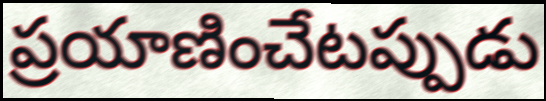
ప్రయాణించేటప్పుడు